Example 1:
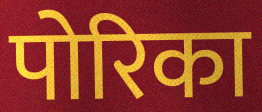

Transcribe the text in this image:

पोरिका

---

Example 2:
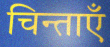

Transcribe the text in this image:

चिन्ताएँ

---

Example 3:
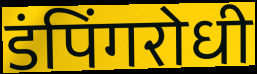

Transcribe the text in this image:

डंपिंगरोधी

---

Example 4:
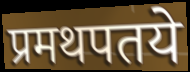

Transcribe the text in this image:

प्रमथपतये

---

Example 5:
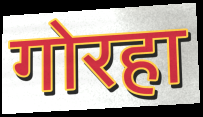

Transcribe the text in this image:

गोरहा